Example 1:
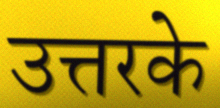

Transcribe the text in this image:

उत्तरके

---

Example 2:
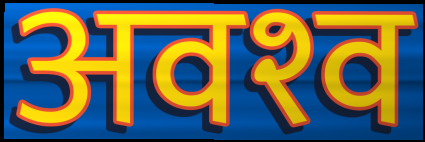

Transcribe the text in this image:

अवश्व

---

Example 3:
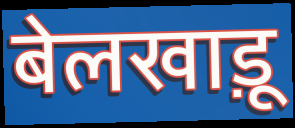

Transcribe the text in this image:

बेलखाड़ू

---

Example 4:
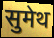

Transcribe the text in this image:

सुमेथ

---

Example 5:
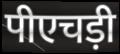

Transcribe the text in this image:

पीएचड़ी